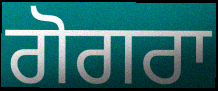
ਗੋਗਰਾ